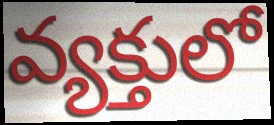
వ్యక్తులో